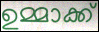
ഉമ്മാക്ക്